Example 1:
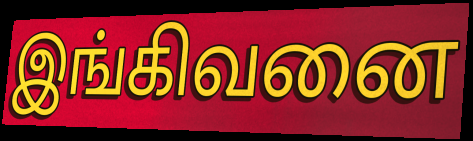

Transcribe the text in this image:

இங்கிவனை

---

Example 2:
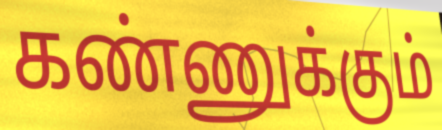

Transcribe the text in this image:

கண்ணுக்கும்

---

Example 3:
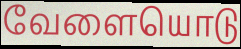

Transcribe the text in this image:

வேளையொடு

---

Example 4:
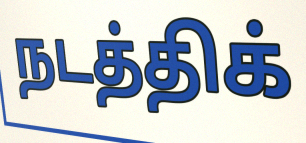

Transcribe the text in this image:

நடத்திக்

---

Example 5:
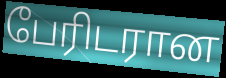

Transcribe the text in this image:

பேரிடரான